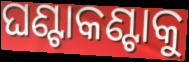
ଘଣ୍ଟାକଣ୍ଟାକୁ